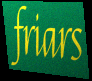
friars